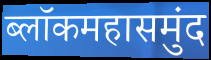
ब्लॉकमहासमुंद